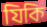
যিকি